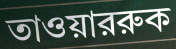
তাওয়াররুক